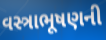
વસ્ત્રાભૂષણની